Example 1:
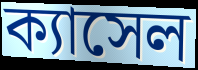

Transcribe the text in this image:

ক্যাসেল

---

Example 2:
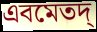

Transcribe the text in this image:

এবমেতদ্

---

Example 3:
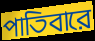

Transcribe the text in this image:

পাতিবারে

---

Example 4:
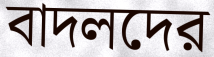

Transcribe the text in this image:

বাদলদের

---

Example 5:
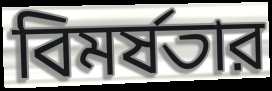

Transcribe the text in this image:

বিমর্ষতার